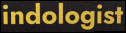
indologist